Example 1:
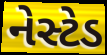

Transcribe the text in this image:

નેસ્ટેડ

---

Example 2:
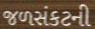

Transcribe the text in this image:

જળસંકટની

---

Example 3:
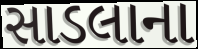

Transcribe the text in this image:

સાડલાના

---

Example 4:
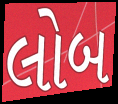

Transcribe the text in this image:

લોબ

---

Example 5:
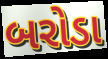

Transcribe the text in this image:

બરોડા